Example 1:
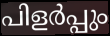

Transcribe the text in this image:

പിളർപ്പും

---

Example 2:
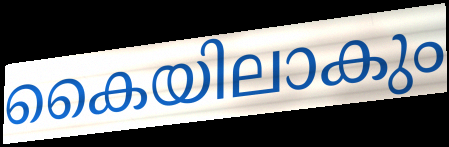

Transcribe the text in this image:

കൈയിലാകും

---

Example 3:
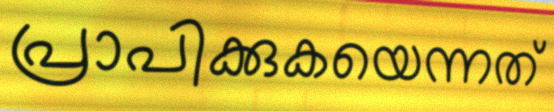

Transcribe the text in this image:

പ്രാപിക്കുകയെന്നത്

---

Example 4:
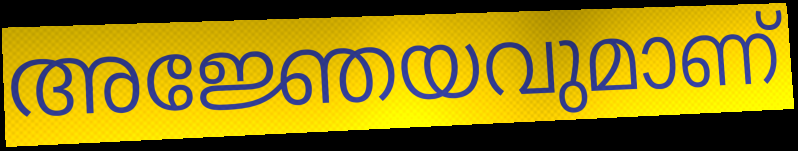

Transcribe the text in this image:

അജ്ഞേയവുമാണ്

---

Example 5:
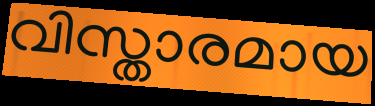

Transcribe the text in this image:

വിസ്താരമായ